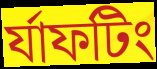
র্যাফটিং